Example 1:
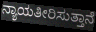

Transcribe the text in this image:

ನ್ಯಾಯತೀರಿಸುತ್ತಾನೆ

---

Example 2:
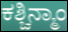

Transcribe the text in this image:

ಕಶ್ಚಿನ್ಮಾಂ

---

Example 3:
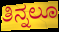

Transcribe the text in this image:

ತಿನ್ನಲೂ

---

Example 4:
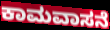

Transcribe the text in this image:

ಕಾಮವಾಸನೆ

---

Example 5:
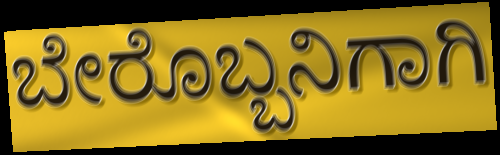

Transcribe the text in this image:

ಬೇರೊಬ್ಬನಿಗಾಗಿ